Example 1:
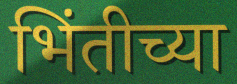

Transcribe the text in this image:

भिंतीच्या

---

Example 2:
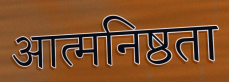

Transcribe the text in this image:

आत्मनिष्ठता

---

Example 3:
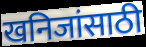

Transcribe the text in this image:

खनिजांसाठी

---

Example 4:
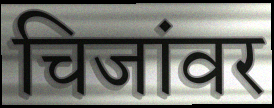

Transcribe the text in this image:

चिजांवर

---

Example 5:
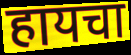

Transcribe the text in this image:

हायचा